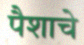
पैशाचे